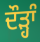
ਦੌੜ੍ਹਾੰ